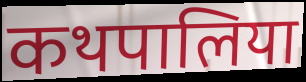
कथपालिया